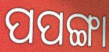
ପପଙ୍ଗା